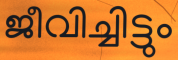
ജീവിച്ചിട്ടും